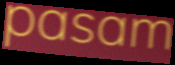
pasam